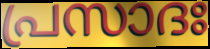
പ്രസാദഃ